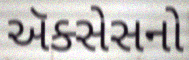
ઍક્સેસનો